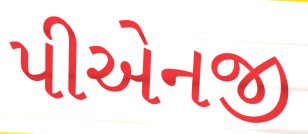
પીએનજી